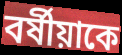
বর্ষীয়াকে